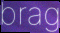
brag